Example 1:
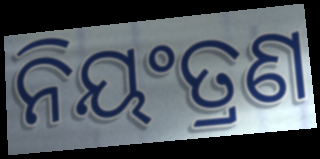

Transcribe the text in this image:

ନିୟଂତ୍ରଣ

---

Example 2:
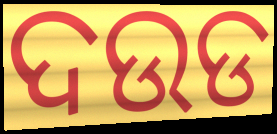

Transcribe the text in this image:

ଦଉଡ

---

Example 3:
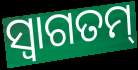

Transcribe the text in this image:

ସ୍ୱାଗତମ୍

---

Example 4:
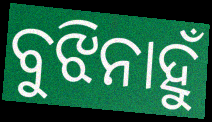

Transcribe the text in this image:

ବୁଝିନାହୁଁ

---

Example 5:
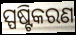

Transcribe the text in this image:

ସ୍ପଷ୍ଟିକରଣ